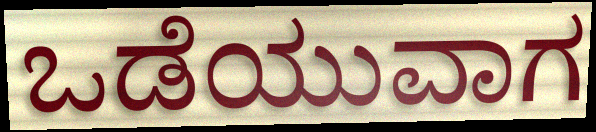
ಒಡೆಯುವಾಗ